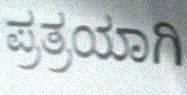
ಪ್ರತ್ರಯಾಗಿ